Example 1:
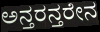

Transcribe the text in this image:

ಅನ್ತರನ್ತರೇನ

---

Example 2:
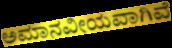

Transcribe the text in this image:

ಅಮಾನವೀಯವಾಗಿವೆ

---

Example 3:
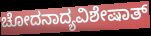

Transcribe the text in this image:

ಚೋದನಾದ್ಯವಿಶೇಷಾತ್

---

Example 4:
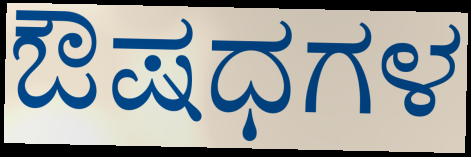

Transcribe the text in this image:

ಔಷಧಗಳ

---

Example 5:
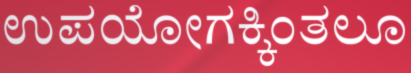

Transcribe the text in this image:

ಉಪಯೋಗಕ್ಕಿಂತಲೂ